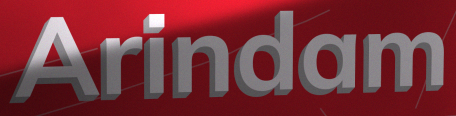
Arindam